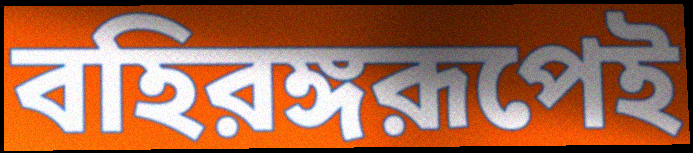
বহিরঙ্গরূপেই